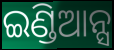
ଇଣ୍ଡିଆନ୍ସ